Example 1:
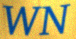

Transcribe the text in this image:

WN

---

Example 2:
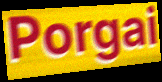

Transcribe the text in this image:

Porgai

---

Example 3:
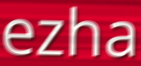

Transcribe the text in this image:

ezha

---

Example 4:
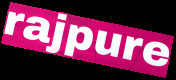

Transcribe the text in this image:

rajpure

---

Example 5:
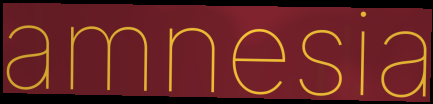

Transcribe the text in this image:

amnesia